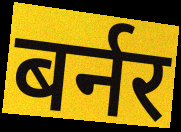
बर्नर